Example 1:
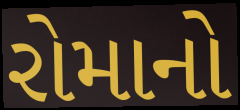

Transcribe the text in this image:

રોમાનો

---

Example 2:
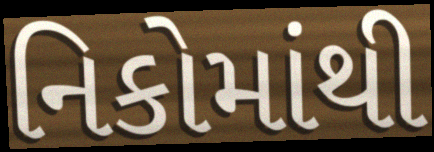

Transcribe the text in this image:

નિકોમાંથી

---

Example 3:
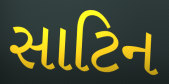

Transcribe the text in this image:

સાટિન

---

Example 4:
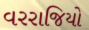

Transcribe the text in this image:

વરરાજિયો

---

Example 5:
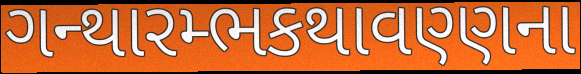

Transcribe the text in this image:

ગન્થારમ્ભકથાવણ્ણના